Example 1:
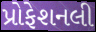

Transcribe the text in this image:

પ્રોફેશનલી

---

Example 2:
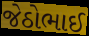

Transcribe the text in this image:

જેઠોભાઈ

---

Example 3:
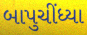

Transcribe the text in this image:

બાપુચીંધ્યા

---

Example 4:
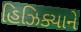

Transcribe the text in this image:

હિઝિક્યાને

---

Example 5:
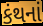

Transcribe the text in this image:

કંથનાં